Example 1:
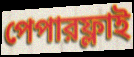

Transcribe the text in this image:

পেপারফ্লাই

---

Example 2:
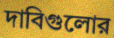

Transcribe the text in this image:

দাবিগুলোর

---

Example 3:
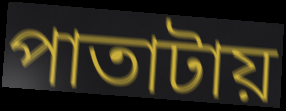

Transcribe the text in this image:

পাতাটায়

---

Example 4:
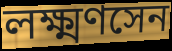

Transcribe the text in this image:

লক্ষ্মণসেন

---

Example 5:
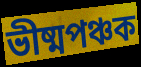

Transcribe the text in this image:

ভীষ্মপঞ্চক